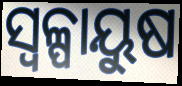
ସ୍ୱଳ୍ପାୟୁଷ